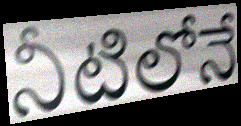
నీటిలోనే